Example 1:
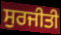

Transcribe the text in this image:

ਸੁਰਜੀਤੀ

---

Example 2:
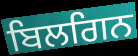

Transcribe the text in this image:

ਬਿਲਗਿਨ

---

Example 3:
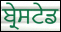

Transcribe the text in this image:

ਬ੍ਰੇਸਟੇਡ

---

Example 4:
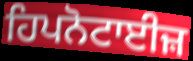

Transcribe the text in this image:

ਹਿਪਨੋਟਾਈਜ਼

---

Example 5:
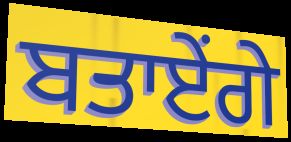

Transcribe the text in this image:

ਬਤਾਏਂਗੇ